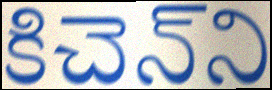
కిచెన్‌ని